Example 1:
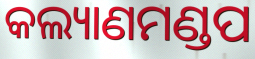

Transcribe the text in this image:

କଲ୍ୟାଣମଣ୍ଡପ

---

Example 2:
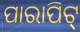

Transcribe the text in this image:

ପାରାପିଟ୍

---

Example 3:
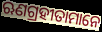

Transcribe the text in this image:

ଋଣଗ୍ରହୀତାମାନେ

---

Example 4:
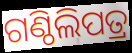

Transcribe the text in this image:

ଗଣ୍ଠିଲିପତ୍ର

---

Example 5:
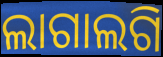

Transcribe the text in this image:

ଲାଗାଲଗି